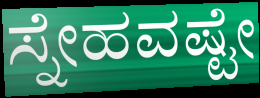
ಸ್ನೇಹವಷ್ಟೇ